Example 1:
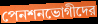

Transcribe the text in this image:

পেনশনভোগীদের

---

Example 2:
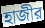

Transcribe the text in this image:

হাজীর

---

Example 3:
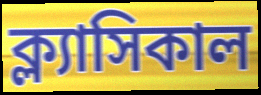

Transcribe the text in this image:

ক্ল্যাসিকাল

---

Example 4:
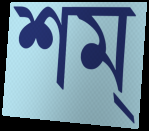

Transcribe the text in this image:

শম্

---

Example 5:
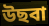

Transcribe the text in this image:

উছবা